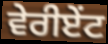
ਵੇਰੀਏਂਟ